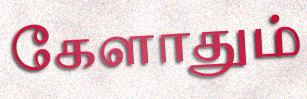
கேளாதும்